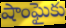
షాంఘైకు